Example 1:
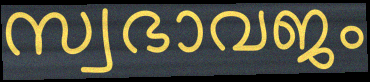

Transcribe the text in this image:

സ്വഭാവജം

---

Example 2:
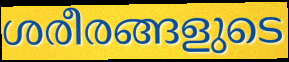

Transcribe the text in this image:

ശരീരങ്ങളുടെ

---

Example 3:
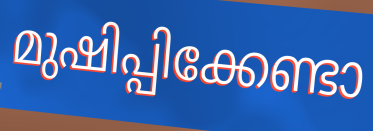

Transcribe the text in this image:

മുഷിപ്പിക്കേണ്ടാ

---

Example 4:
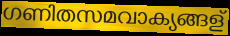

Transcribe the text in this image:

ഗണിതസമവാക്യങ്ങള്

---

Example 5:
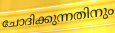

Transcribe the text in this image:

ചോദിക്കുന്നതിനും